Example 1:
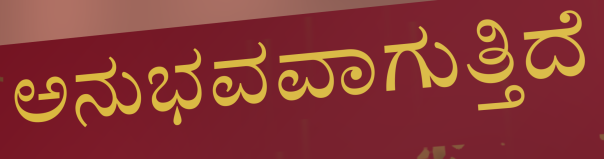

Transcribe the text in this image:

ಅನುಭವವಾಗುತ್ತಿದೆ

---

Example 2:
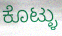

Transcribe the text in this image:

ಕೊಟ್ಳು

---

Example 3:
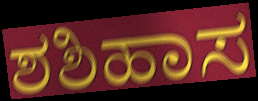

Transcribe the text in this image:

ಶಶಿಹಾಸ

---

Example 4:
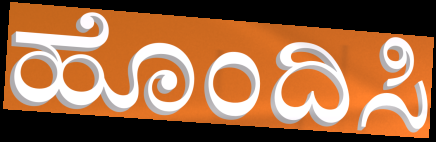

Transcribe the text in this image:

ಹೊಂದಿಸಿ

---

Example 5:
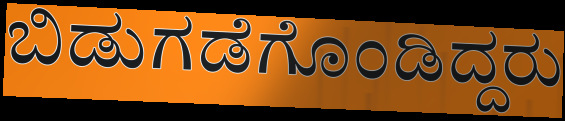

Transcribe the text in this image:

ಬಿಡುಗಡೆಗೊಂಡಿದ್ದರು